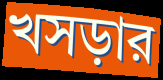
খসড়ার